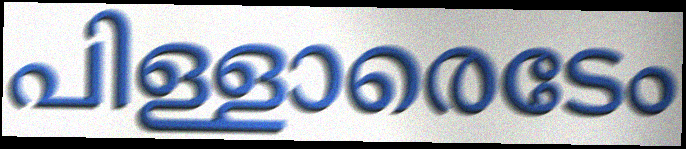
പിള്ളാരെടേം